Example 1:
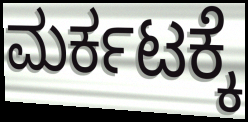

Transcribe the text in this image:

ಮರ್ಕಟಕ್ಕೆ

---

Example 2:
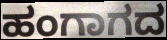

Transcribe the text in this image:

ಹಂಗಾಗದ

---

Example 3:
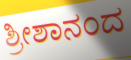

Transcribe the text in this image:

ಶ್ರೀಶಾನಂದ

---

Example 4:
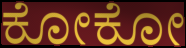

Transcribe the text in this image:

ಕೋಕೋ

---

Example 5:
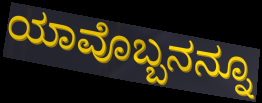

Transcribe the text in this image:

ಯಾವೊಬ್ಬನನ್ನೂ